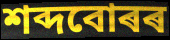
শব্দবোৰৰ